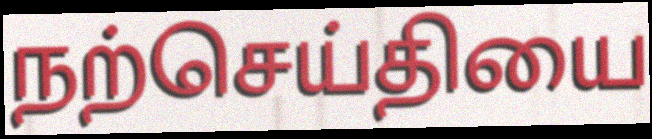
நற்செய்தியை